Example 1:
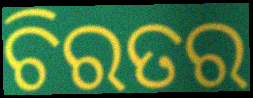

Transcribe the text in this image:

ଚିରତର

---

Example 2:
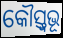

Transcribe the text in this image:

କୌସ୍ତ୍ୱଭୂ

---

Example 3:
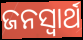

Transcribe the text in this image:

ଜନସ୍ଵାର୍ଥ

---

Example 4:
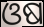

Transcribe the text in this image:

ଓଷ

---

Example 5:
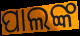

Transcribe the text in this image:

ପାଲଙ୍କ